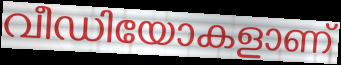
വീഡിയോകളാണ്